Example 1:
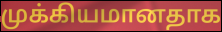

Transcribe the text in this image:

முக்கியமானதாக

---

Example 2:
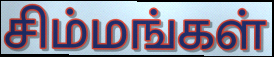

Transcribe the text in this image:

சிம்மங்கள்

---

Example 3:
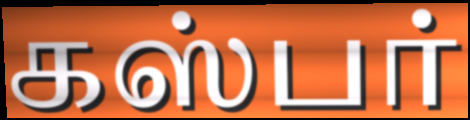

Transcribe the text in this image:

கஸ்பர்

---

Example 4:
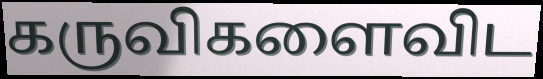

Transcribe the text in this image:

கருவிகளைவிட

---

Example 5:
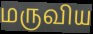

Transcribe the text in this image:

மருவிய